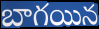
బాగయిన